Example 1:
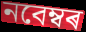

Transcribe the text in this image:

নবেম্বৰ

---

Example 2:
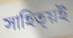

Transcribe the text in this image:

সাহিত্য়ই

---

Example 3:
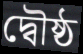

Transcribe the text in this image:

দ্বৌষ্ঠ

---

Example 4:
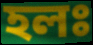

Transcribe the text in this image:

হলঃ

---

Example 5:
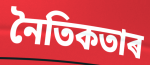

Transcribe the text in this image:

নৈতিকতাৰ